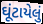
ઘૂંટાયેલું